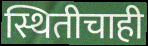
स्थितीचाही